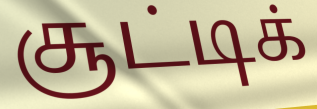
சூட்டிக்